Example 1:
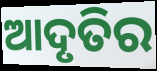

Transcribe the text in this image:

ଆଦୃତିର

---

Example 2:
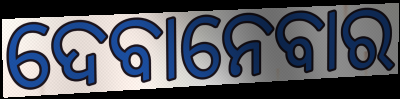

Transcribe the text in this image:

ଦେବାନେବାର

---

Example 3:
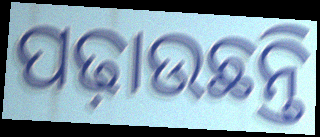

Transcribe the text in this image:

ପଢ଼ାଉଛନ୍ତି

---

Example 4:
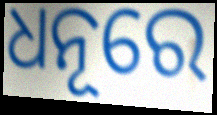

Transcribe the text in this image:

ଧନୂରେ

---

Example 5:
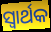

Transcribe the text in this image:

ସ୍ବାର୍ଥକ